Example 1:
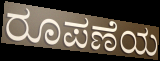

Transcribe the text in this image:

ರೂಪಣೆಯ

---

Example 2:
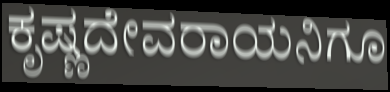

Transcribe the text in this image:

ಕೃಷ್ಣದೇವರಾಯನಿಗೂ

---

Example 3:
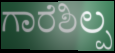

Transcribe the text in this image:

ಗಾರೆಶಿಲ್ಪ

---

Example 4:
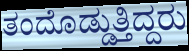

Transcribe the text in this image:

ತಂದೊಡ್ಡುತ್ತಿದ್ದರು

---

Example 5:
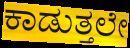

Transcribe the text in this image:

ಕಾಡುತ್ತಲೇ